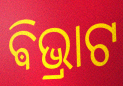
ଵିଭ୍ରାଟ